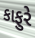
કાફુરે